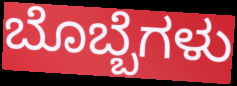
ಬೊಬ್ಬೆಗಳು